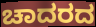
ಚಾದರದ